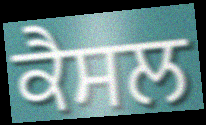
ਕੈਸਲ